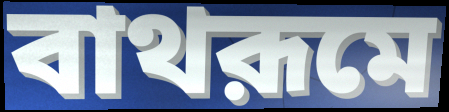
বাথরূমে